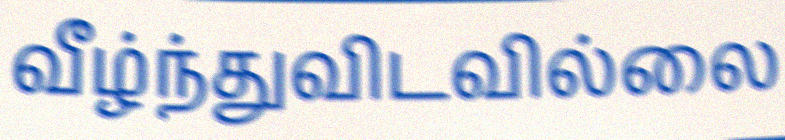
வீழ்ந்துவிடவில்லை